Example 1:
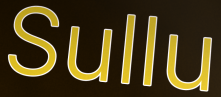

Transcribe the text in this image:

Sullu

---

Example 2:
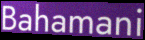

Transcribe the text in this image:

Bahamani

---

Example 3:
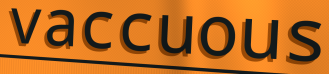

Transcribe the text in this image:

vaccuous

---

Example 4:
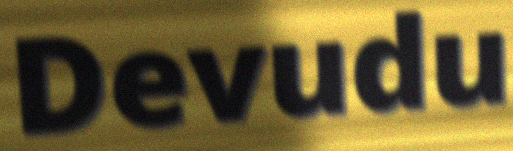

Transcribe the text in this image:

Devudu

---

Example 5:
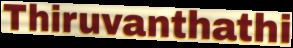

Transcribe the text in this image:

Thiruvanthathi